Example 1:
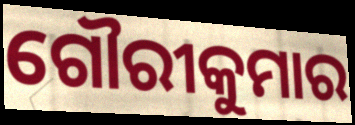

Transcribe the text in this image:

ଗୌରୀକୁମାର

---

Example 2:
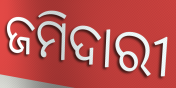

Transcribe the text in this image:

ଜମିଦାରୀ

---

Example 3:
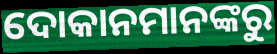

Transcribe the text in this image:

ଦୋକାନମାନଙ୍କରୁ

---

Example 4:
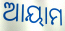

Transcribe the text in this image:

ଆୟାମ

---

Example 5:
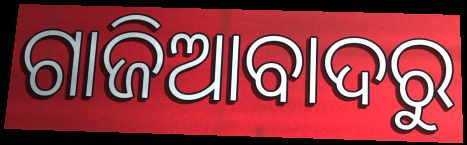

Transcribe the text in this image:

ଗାଜିଆବାଦରୁ